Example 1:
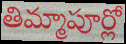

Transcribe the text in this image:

తిమ్మాపూర్లో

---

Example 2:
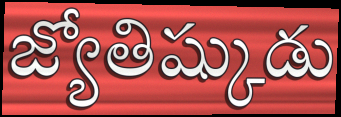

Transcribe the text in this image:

జ్యోతిష్కుడు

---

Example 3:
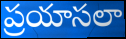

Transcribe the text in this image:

ప్రయాసలా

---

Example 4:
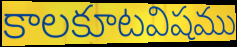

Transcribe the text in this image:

కాలకూటవిషము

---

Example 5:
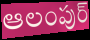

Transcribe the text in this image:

ఆలంపుర్